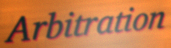
Arbitration